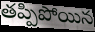
తప్పిపోయిన